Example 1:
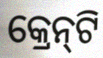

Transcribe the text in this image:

କ୍ରେନ୍‍ଟି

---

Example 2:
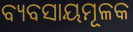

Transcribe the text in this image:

ବ୍ୟବସାୟମୂଳକ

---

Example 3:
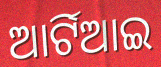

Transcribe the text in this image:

ଆର୍ଟିଆଇ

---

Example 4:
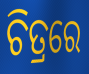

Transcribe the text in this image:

ଚିତ୍ରରେ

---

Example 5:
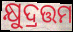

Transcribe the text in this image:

କ୍ଷୁଦ୍ରତ୍ତମ